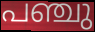
പഞ്ചു